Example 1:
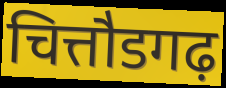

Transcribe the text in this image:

चित्तौडगढ़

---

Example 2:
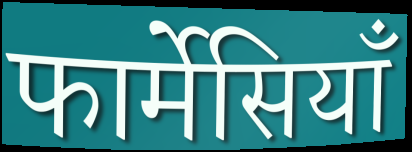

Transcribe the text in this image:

फार्मेसियाँ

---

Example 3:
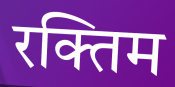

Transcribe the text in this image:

रक्तिम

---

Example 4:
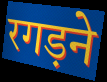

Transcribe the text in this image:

रगड़ने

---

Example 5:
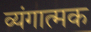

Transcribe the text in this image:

व्यंगात्मक